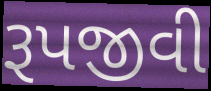
રૂપજીવી